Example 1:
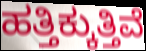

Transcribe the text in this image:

ಹತ್ತಿಕ್ಕುತ್ತಿವೆ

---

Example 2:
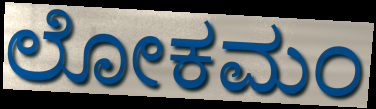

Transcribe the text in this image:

ಲೋಕಮಂ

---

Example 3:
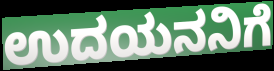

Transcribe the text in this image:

ಉದಯನನಿಗೆ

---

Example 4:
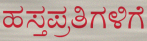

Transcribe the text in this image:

ಹಸ್ತಪ್ರತಿಗಳಿಗೆ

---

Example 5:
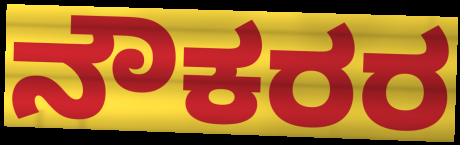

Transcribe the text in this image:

ನೌಕರರ